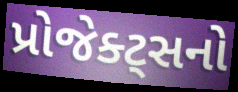
પ્રોજેક્ટ્સનો